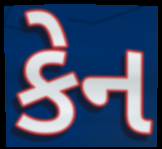
કેન